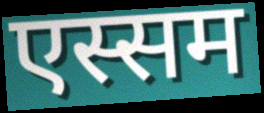
एस्सम